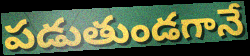
పడుతుండగానే